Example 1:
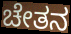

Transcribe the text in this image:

ಚೇತನ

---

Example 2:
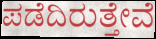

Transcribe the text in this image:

ಪಡೆದಿರುತ್ತೇವೆ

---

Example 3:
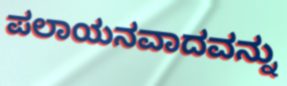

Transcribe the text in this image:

ಪಲಾಯನವಾದವನ್ನು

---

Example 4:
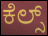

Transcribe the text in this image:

ಕೆಲ್ಸ್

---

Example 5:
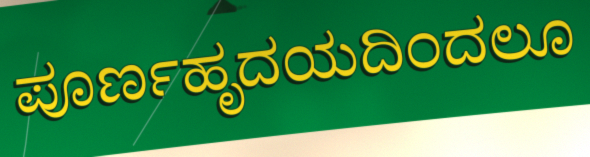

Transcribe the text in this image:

ಪೂರ್ಣಹೃದಯದಿಂದಲೂ